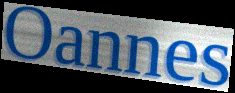
Oannes